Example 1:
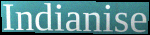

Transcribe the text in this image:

Indianise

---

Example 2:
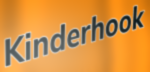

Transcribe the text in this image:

Kinderhook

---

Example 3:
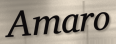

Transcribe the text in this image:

Amaro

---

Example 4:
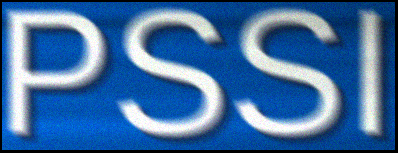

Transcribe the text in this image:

PSSI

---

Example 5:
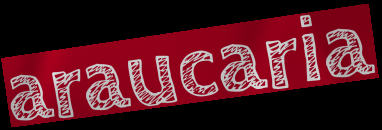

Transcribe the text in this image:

araucaria